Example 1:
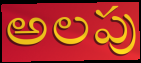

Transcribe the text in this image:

అలపు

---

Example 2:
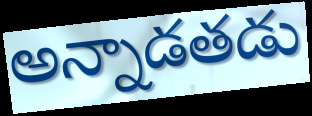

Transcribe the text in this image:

అన్నాడతడు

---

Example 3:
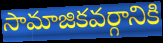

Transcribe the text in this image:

సామాజికవర్గానికి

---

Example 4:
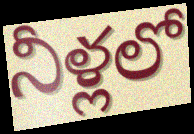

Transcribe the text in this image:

నీళ్లలో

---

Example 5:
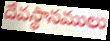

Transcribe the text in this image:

దేవస్థానములు